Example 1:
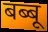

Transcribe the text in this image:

बब्बू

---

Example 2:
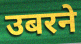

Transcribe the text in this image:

उबरने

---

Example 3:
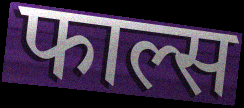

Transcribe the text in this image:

फाल्स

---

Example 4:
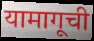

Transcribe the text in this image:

यामागूची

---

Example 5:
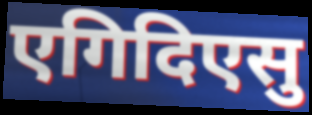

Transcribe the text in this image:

एगिदिएसु